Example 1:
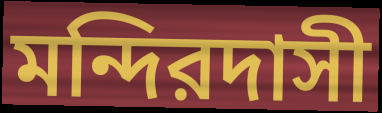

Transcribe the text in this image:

মন্দিরদাসী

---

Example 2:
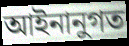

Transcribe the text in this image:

আইনানুগত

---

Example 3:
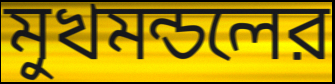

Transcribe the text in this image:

মুখমন্ডলের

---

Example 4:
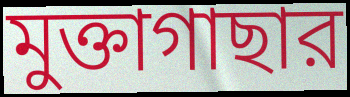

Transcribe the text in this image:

মুক্তাগাছার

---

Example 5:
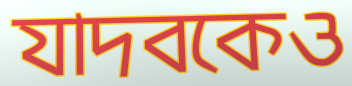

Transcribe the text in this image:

যাদবকেও